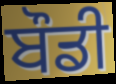
ਬੌਡੀ